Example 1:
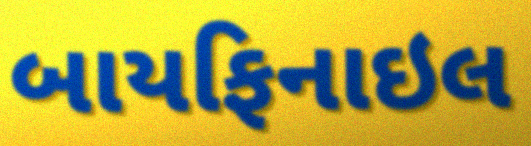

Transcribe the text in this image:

બાયફિનાઇલ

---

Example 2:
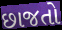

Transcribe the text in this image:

છાજતો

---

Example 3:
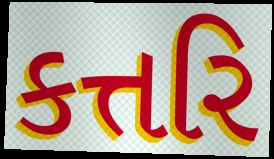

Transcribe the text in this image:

કત્તરિ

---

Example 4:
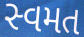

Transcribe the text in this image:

સ્વમત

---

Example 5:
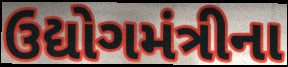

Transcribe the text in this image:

ઉદ્યોગમંત્રીના